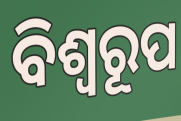
ବିଶ୍ଵରୂପ